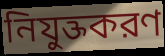
নিযুক্তকরণ